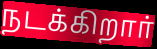
நடக்கிறார்